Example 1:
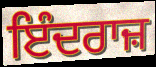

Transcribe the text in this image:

ਇੰਦਰਾਜ਼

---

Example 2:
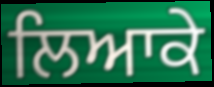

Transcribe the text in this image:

ਲਿਆਕੇ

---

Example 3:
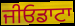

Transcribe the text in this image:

ਜੀਓਡਾਟਾ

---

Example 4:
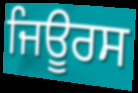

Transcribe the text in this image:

ਜਿਊਰਸ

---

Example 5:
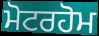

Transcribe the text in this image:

ਮੋਟਰਹੋਮ